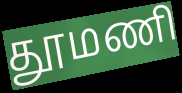
தூமணி